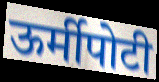
ऊर्मीपोटी